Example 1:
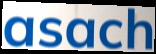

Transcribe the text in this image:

asach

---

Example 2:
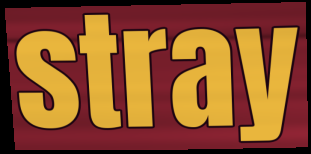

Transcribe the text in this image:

stray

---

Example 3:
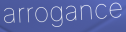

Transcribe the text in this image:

arrogance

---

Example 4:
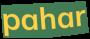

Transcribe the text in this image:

pahar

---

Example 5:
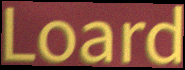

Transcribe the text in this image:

Loard